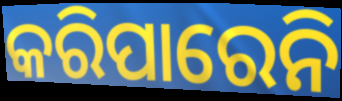
କରିପାରେନି